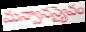
మన్వానస్యైవం